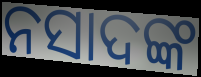
ନସାଦଙ୍କ